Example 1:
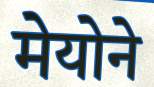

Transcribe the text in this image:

मेयोने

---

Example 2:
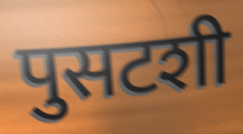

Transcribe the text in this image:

पुसटशी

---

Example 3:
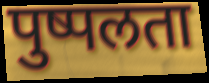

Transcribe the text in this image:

पुष्पलता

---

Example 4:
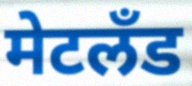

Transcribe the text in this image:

मेटलँड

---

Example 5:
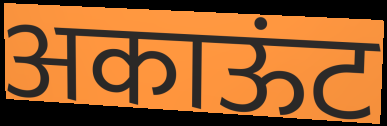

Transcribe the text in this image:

अकाऊंट